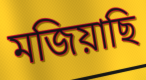
মজিয়াছি